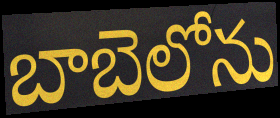
బాబెలోను